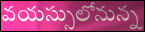
వయస్సులోనున్న